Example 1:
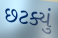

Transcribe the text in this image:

છટક્યું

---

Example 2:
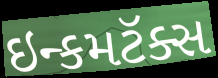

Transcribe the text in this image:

ઇન્કમટૅક્સ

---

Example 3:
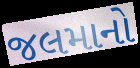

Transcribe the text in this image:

જલમાનો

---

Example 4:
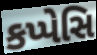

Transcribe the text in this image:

કપ્પેસિ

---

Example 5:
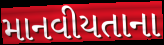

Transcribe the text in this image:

માનવીયતાના